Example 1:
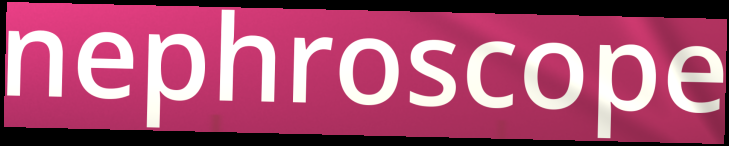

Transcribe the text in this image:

nephroscope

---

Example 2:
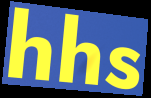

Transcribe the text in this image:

hhs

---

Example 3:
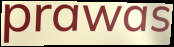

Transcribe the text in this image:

prawas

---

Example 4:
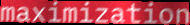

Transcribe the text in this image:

maximization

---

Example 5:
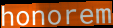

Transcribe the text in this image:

honorem